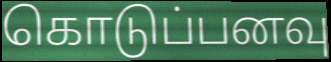
கொடுப்பனவு